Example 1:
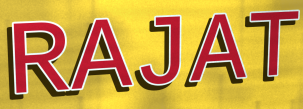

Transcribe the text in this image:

RAJAT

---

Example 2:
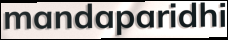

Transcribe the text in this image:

mandaparidhi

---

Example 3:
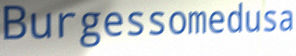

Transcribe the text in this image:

Burgessomedusa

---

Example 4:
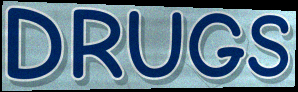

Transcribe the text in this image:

DRUGS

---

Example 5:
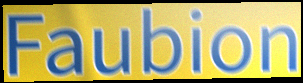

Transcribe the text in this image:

Faubion